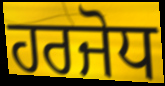
ਹਰਜੋਧ